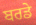
ਬਰਡੇ